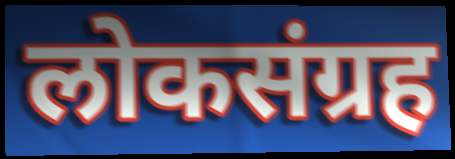
लोकसंग्रह